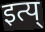
इत्य्